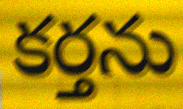
కర్తను